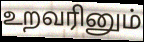
உறவரினும்